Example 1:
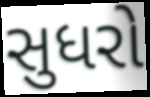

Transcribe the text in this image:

સુધરો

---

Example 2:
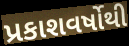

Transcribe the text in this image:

પ્રકાશવર્ષોથી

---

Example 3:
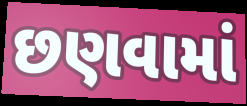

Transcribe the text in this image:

છણવામાં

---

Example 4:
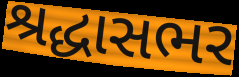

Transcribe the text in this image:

શ્રદ્ધાસભર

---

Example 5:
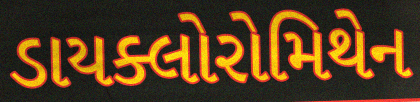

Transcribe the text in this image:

ડાયક્લોરોમિથેન